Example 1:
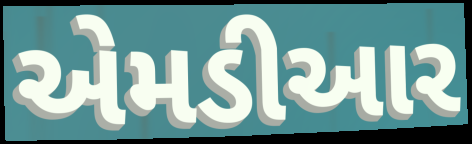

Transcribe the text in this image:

એમડીઆર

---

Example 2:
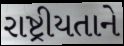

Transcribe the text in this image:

રાષ્ટ્રીયતાને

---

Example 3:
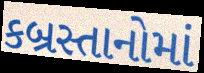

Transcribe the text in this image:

કબ્રસ્તાનોમાં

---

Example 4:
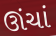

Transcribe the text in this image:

ઊંચાં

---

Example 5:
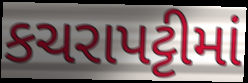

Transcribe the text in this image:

કચરાપટ્ટીમાં